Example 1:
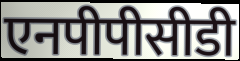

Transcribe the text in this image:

एनपीपीसीडी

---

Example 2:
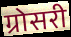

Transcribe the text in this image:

ग्रोसरी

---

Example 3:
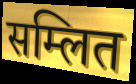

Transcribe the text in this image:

सम्लित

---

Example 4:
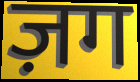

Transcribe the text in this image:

ज़ग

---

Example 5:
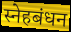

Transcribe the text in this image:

स्नेहबंधन